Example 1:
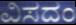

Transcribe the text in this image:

ವಿಸದಂ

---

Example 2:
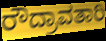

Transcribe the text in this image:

ರೌದ್ರಾವತಾರಿ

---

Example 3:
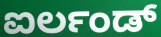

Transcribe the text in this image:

ಐರ್ಲಂಡ್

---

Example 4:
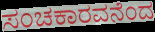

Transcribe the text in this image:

ಸಂಚಕಾರವನೆಂದ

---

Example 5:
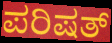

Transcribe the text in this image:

ಪರಿಷತ್